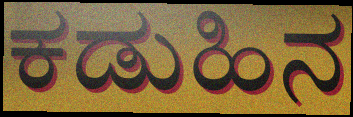
ಕಡುಹಿನ